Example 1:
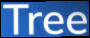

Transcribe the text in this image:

Tree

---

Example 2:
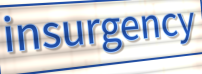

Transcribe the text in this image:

insurgency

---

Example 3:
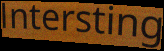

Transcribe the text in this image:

Intersting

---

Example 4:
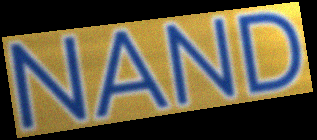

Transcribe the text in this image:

NAND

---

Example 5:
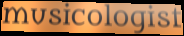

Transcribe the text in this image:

musicologist